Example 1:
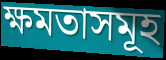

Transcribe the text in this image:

ক্ষমতাসমূহ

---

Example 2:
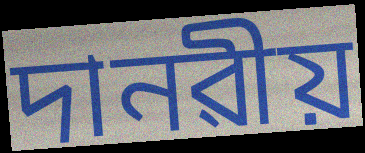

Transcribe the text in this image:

দানৱীয়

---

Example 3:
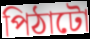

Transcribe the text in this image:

পিঠাটো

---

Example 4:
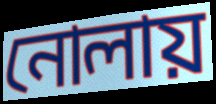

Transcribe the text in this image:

নোলায়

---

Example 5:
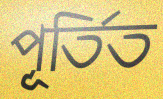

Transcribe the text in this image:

পূৰ্তিত